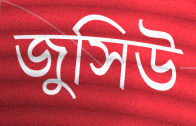
জুসিউ